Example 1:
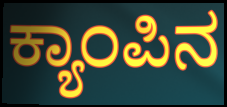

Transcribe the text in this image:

ಕ್ಯಾಂಪಿನ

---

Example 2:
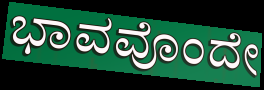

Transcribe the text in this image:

ಭಾವವೊಂದೇ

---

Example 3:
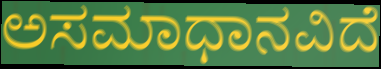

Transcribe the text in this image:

ಅಸಮಾಧಾನವಿದೆ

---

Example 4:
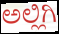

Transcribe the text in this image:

ಅಲ್ಲಿಗಿ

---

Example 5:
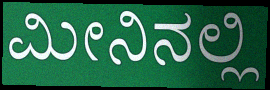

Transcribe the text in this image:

ಮೀನಿನಲ್ಲಿ